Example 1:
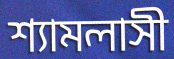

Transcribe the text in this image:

শ্যামলাসী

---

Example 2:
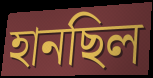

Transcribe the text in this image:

হানছিল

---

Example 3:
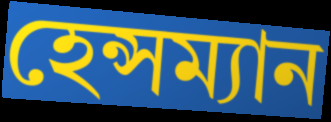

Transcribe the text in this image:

হেন্সম্যান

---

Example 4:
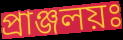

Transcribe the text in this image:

প্রাঞ্জলয়ঃ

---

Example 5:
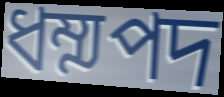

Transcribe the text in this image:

ধম্মপদ